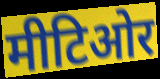
मीटिओर